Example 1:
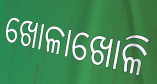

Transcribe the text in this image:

ଖୋଳାଖୋଳି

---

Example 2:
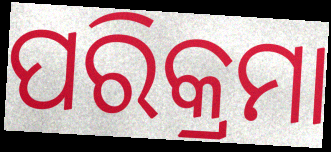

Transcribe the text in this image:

ପରିକ୍ରମା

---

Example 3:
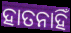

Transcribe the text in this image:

ହାତନାହିଁ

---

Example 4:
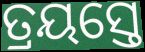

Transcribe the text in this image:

ତ୍ରୟସ୍ତେ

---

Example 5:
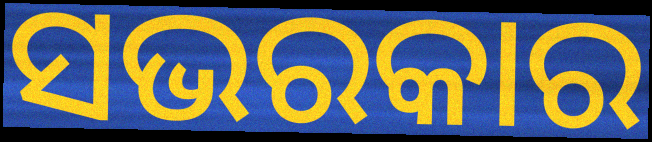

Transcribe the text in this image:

ସଭରକାର